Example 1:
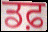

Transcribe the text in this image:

ਡਫ਼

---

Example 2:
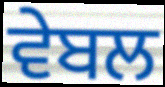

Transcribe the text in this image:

ਵੇਬਲ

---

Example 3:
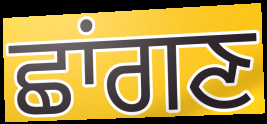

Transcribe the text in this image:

ਛਾਂਗਣ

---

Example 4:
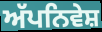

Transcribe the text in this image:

ਅੱਪਨਿਵੇਸ਼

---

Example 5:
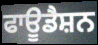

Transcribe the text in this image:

ਫਾਊਡੈਸ਼ਨ